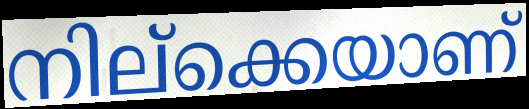
നില്ക്കെയാണ്